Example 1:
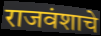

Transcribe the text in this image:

राजवंशाचे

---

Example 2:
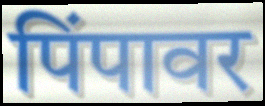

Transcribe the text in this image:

पिंपावर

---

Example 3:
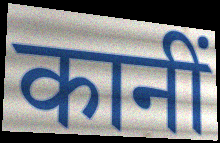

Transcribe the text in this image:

कानीं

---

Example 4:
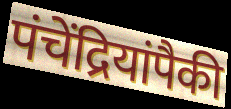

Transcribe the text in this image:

पंचेंद्रियांपैकी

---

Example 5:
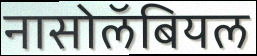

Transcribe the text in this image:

नासोलॅबियल